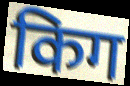
किग